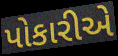
પોકારીએ